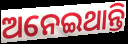
ଅନେଇଥାନ୍ତି